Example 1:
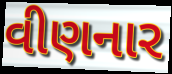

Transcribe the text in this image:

વીણનાર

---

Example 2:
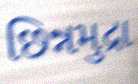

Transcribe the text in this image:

છિન્નમુદ્રા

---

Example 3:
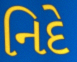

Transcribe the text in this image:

નિદે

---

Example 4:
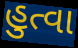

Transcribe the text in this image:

હુત્વા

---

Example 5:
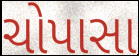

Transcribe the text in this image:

ચોપાસા